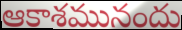
ఆకాశమునందు